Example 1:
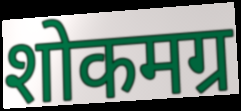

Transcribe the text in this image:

शोकमग्र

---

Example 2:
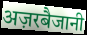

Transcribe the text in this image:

अज़रबैजानी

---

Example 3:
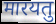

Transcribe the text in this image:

मारयतु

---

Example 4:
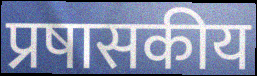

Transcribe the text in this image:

प्रषासकीय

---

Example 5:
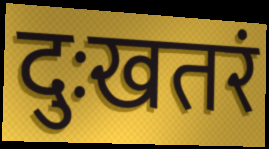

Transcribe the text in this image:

दुःखतरं